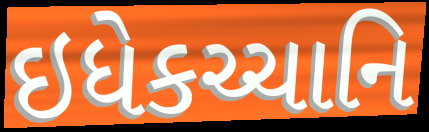
ઇધેકચ્ચાનિ